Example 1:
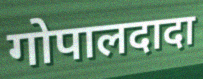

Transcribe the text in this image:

गोपालदादा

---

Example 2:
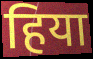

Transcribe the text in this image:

हिया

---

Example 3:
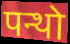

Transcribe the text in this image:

पन्थो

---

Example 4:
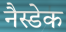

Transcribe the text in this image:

नैस्डेक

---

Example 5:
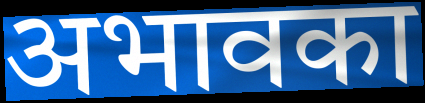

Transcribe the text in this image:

अभावका